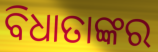
ବିଧାତାଙ୍କର